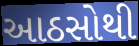
આઠસોથી